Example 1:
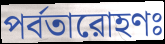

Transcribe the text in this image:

পর্বতারোহণঃ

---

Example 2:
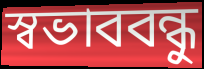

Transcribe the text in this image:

স্বভাববন্ধু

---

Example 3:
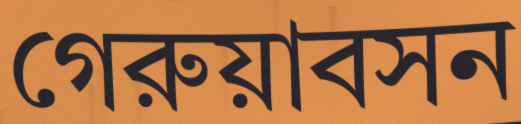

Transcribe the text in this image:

গেরুয়াবসন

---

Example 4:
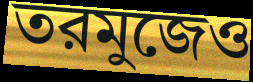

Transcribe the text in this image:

তরমুজেও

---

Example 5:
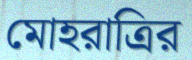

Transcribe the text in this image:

মোহরাত্রির